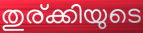
തുര്ക്കിയുടെ